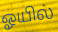
ஓயில்